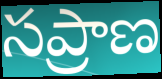
సప్రాణ